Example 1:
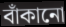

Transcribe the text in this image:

বাঁকানো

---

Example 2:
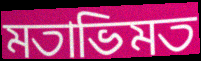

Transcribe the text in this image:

মতাভিমত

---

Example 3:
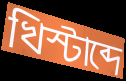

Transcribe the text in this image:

খিস্টাব্দে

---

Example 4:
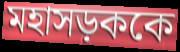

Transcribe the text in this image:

মহাসড়ককে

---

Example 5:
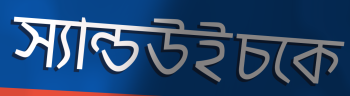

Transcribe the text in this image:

স্যান্ডউইচকে